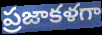
ప్రజాకళగా